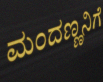
ಮಂದಣ್ಣನಿಗೆ